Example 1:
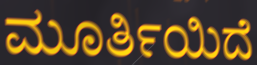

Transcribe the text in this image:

ಮೂರ್ತಿಯಿದೆ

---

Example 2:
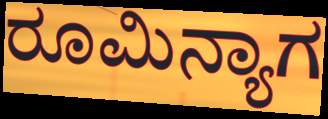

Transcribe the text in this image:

ರೂಮಿನ್ಯಾಗ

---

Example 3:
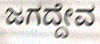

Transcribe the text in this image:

ಜಗದ್ದೇವ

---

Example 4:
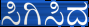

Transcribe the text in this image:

ಸಿಗಿಸಿದ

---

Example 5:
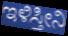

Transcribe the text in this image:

ಇಳಿಸ್ತೀನಿ